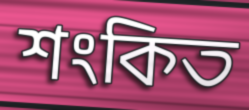
শংকিত